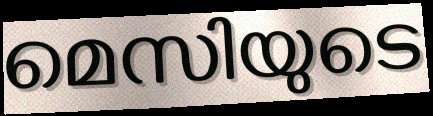
മെസിയുടെ